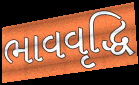
ભાવવૃદ્ધિ